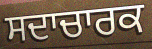
ਸਦਾਚਾਰਕ